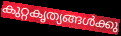
കുറ്റകൃത്യങ്ങൾക്കു